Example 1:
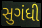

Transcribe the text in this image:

સુગંધી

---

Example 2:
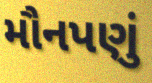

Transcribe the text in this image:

મૌનપણું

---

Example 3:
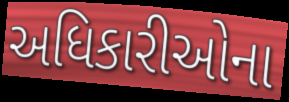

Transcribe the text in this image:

અધિકારીઓના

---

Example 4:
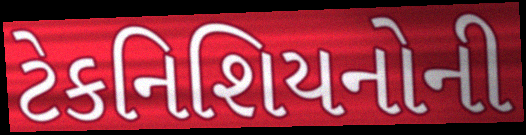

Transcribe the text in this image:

ટેકનિશિયનોની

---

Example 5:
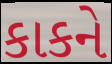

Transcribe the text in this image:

કાકને